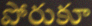
పోరుకూ